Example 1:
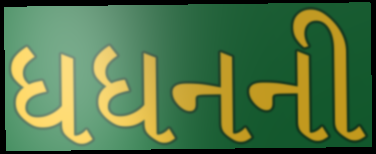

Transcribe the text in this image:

ધધનની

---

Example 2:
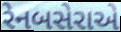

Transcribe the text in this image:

રેનબસેરાએ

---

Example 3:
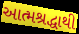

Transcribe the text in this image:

આત્મશ્રદ્ધાથી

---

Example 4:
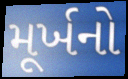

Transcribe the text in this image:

મૂર્ખનો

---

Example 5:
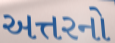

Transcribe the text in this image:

અત્તરનો